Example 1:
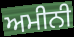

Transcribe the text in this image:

ਅਮੀਨੀ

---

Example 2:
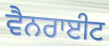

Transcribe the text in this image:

ਵੈਨਰਾਈਟ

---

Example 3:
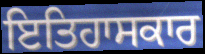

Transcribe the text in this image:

ਇਤਿਹਾਸਕਾਰ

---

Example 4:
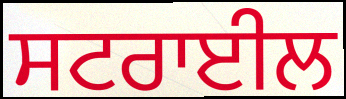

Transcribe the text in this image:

ਸਟਰਾਈਲ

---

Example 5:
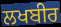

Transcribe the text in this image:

ਲਖਬੀਰ